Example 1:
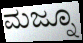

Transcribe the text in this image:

ಮಜ್ನೂ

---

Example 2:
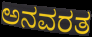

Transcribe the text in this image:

ಅನವರತ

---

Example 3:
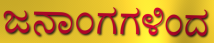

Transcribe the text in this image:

ಜನಾಂಗಗಳಿಂದ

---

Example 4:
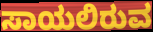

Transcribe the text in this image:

ಸಾಯಲಿರುವ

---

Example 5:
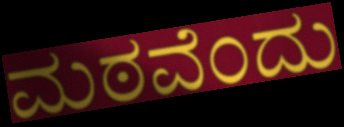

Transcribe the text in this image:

ಮಠವೆಂದು